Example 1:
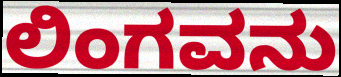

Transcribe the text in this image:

ಲಿಂಗವನು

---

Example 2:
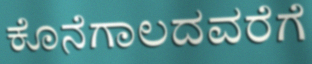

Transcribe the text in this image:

ಕೊನೆಗಾಲದವರೆಗೆ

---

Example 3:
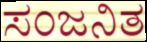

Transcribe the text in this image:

ಸಂಜನಿತ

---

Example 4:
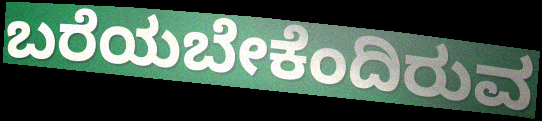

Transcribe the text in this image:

ಬರೆಯಬೇಕೆಂದಿರುವ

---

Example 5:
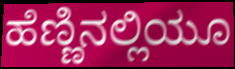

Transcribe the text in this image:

ಹೆಣ್ಣಿನಲ್ಲಿಯೂ